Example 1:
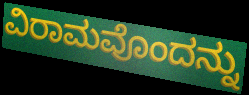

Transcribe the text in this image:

ವಿರಾಮವೊಂದನ್ನು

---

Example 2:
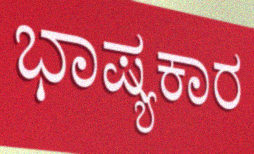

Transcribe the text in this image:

ಭಾಷ್ಯಕಾರ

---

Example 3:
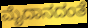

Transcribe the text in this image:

ಮೈದಾನದಂತೆ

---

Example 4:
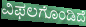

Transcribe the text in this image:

ವಿಫಲಗೊಂಡಿದೆ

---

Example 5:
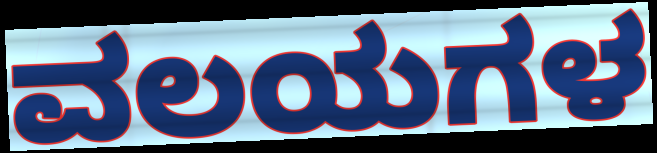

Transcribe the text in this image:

ವಲಯಗಳ